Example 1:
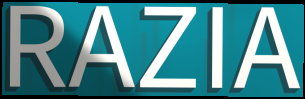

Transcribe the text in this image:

RAZIA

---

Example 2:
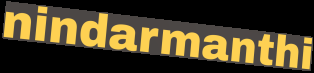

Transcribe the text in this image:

nindarmanthi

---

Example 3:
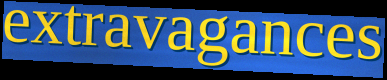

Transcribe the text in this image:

extravagances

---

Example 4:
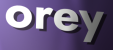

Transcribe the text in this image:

orey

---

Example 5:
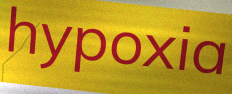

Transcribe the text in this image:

hypoxia